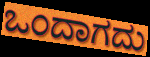
ಒಂದಾಗದು